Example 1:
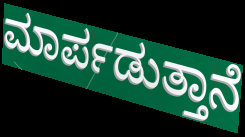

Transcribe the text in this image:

ಮಾರ್ಪಡುತ್ತಾನೆ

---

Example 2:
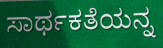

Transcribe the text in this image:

ಸಾರ್ಥಕತೆಯನ್ನ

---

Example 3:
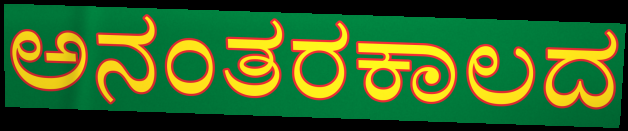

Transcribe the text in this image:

ಅನಂತರಕಾಲದ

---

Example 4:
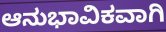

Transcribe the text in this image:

ಆನುಭಾವಿಕವಾಗಿ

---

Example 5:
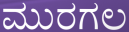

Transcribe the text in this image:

ಮುರಗಲ